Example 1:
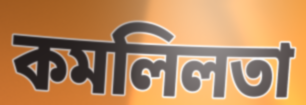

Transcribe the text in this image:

কমলিলতা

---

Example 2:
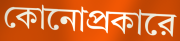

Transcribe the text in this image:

কোনোপ্রকারে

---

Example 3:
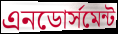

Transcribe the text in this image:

এনডোর্সমেন্ট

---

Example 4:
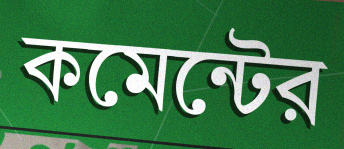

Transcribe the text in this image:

কমেন্টের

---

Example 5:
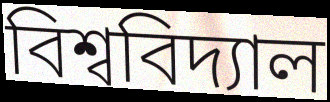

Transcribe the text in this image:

বিশ্ববিদ্যাল